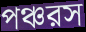
পঞ্চরস